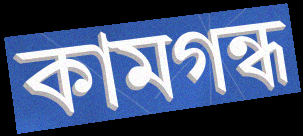
কামগন্ধ